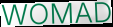
WOMAD